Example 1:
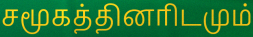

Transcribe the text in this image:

சமூகத்தினரிடமும்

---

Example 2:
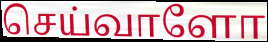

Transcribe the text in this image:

செய்வாளோ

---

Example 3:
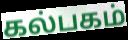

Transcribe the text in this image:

கல்பகம்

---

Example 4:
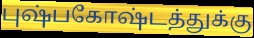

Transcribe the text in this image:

புஷ்பகோஷ்டத்துக்கு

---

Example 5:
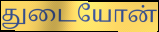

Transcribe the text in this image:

துடையோன்